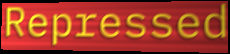
Repressed